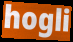
hogli